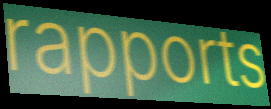
rapports